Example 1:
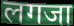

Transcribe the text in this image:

लगजा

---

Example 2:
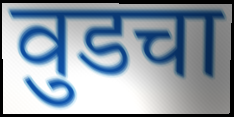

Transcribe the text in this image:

वुडचा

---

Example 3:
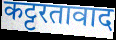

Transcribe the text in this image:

कट्टरतावाद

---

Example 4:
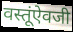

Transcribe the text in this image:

वस्तूंऐवजी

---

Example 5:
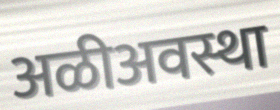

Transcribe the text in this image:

अळीअवस्था